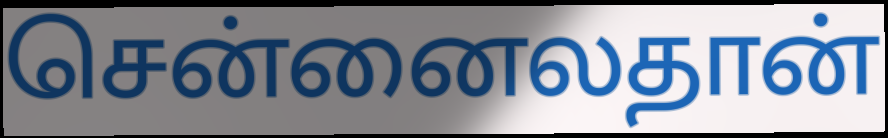
சென்னைலதான்